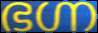
ഭഗ്ന